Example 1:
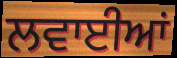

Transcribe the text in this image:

ਲਵਾਈਆਂ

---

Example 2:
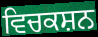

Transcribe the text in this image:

ਵਿਚਕਸ਼ਨ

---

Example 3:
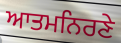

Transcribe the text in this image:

ਆਤਮਨਿਰਣੇ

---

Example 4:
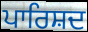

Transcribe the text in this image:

ਪਾਰਿਸ਼ਦ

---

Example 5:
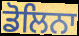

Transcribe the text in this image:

ਡੋਲਿਨਾ